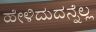
ಹೇಳಿದುದನ್ನೆಲ್ಲ